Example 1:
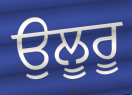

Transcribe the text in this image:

ਉਲੂਰੂ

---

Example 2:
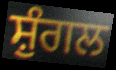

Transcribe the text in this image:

ਸ਼ੁੰਗਲ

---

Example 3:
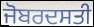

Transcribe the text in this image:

ਜੋਬਰਦਸਤੀ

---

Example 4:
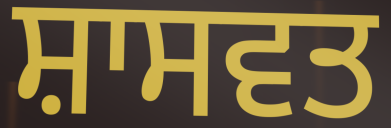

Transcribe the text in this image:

ਸ਼ਾਸਵਤ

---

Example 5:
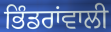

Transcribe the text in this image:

ਭਿੰਡਰਾਂਵਾਲੀ